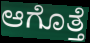
ಆಗೊತ್ತೆ